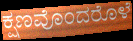
ಕ್ಷಣವೊಂದರೊಳೆ